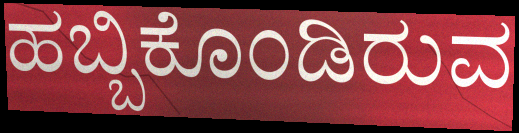
ಹಬ್ಬಿಕೊಂಡಿರುವ